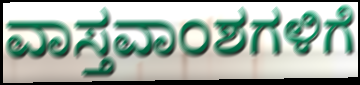
ವಾಸ್ತವಾಂಶಗಳಿಗೆ